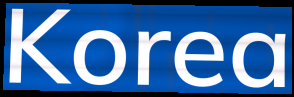
Korea